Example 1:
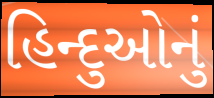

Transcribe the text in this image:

હિન્દુઓનું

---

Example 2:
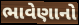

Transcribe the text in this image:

ભાવેણાનો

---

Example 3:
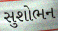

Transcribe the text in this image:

સુશોભન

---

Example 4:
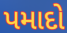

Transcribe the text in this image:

પમાદો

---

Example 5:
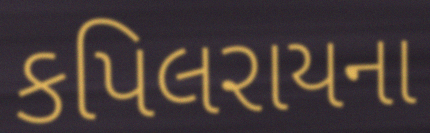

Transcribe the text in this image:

કપિલરાયના